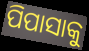
ପିପାସାକୁ